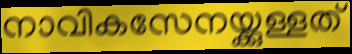
നാവികസേനയ്ക്കുള്ളത്